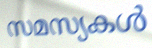
സമസ്യകൾ